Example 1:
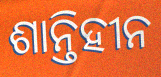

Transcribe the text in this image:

ଶାନ୍ତିହୀନ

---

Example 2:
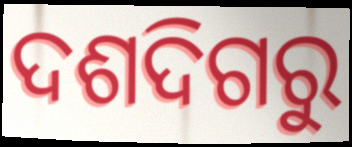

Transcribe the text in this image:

ଦଶଦିଗରୁ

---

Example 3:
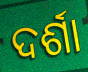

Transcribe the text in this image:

ଦର୍ଶା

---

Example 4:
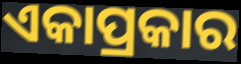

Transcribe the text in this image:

ଏକାପ୍ରକାର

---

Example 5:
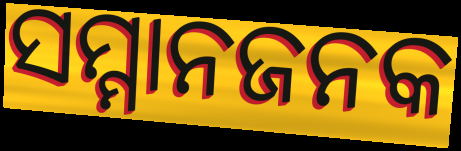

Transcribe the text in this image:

ସମ୍ମାନଜନକ